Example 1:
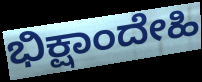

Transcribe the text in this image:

ಭಿಕ್ಷಾಂದೇಹಿ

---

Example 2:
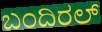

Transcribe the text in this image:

ಬಂದಿರಲ್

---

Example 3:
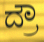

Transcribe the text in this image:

ದ್ರೌ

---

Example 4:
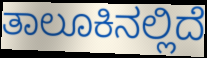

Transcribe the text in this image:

ತಾಲೂಕಿನಲ್ಲಿದೆ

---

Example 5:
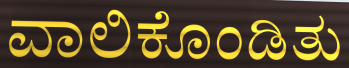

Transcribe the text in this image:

ವಾಲಿಕೊಂಡಿತು